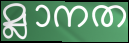
മ്ലാനത